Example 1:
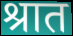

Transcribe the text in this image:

श्रात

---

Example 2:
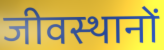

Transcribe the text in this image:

जीवस्थानों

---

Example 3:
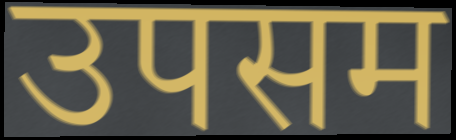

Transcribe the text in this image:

उपसम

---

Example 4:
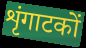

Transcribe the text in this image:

शृंगाटकों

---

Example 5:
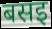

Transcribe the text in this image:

बसइ